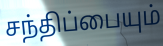
சந்திப்பையும்